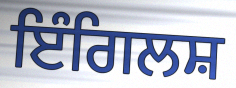
ਇੰਗਿਲਸ਼